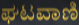
ಘಟವಾಣಿ